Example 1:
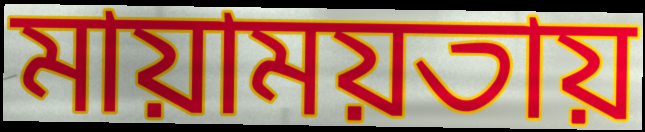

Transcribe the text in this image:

মায়াময়তায়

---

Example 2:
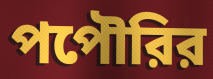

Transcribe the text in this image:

পপৌরির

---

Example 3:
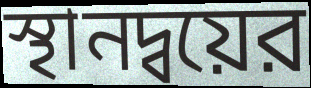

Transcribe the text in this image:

স্থানদ্বয়ের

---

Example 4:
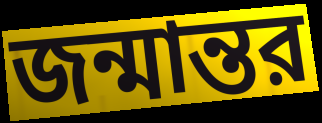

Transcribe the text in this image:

জন্মান্তর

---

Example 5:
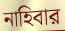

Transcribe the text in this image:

নাহিবার